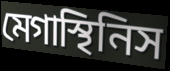
মেগাস্থিনিস